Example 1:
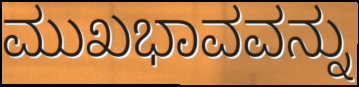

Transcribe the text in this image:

ಮುಖಭಾವವನ್ನು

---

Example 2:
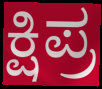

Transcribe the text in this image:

ಕ್ಷಿಪ್ರ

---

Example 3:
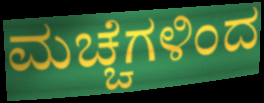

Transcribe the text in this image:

ಮಚ್ಚೆಗಳಿಂದ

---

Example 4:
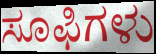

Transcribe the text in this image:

ಸೂಫಿಗಳು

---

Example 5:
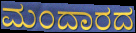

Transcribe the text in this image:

ಮಂದಾರದ